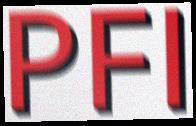
PFI